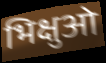
भिक्षुओ